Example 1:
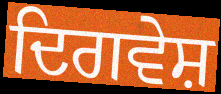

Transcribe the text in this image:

ਦਿਗਵੇਸ਼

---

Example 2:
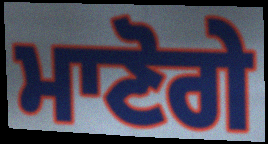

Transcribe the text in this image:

ਮਾਣੋਗੇ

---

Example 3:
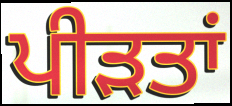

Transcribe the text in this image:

ਪੀਡ਼ਤਾਂ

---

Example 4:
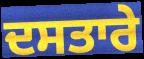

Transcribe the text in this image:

ਦਸਤਾਰੇ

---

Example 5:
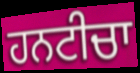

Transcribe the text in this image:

ਹਨਟੀਚਾ